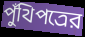
পুঁথিপত্রের